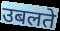
उबलते